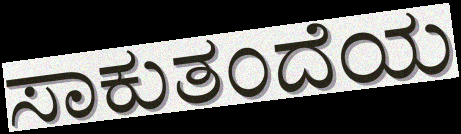
ಸಾಕುತಂದೆಯ